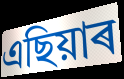
এছিয়াৰ